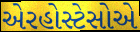
એરહોસ્ટેસોએ